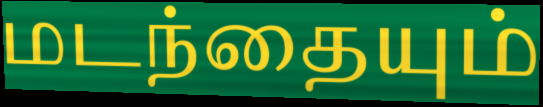
மடந்தையும்